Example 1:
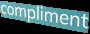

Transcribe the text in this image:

compliment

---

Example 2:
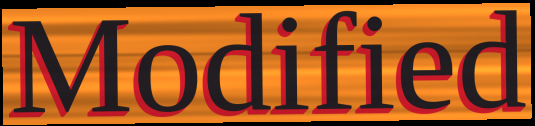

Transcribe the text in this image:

Modified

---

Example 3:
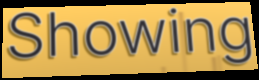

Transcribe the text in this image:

Showing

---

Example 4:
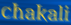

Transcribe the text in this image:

chakali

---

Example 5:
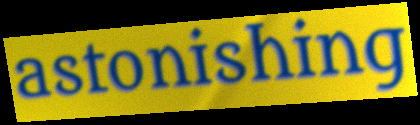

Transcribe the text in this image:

astonishing